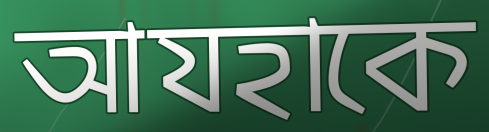
আযহাকে